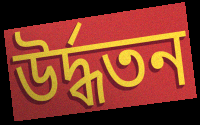
উর্দ্ধতন